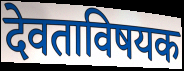
देवताविषयक